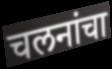
चलनांचा